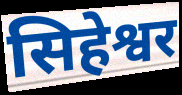
सिहेश्वर